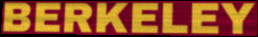
BERKELEY